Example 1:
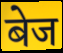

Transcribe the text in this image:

बेज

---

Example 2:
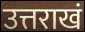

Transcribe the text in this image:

उत्तराखं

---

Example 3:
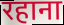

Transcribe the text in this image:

रहाना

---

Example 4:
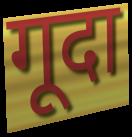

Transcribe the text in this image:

गूदा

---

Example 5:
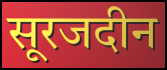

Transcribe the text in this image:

सूरजदीन